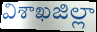
విశాఖజిల్లా